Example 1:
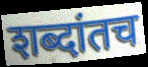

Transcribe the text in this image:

शब्दांतच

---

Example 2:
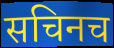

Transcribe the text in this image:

सचिनच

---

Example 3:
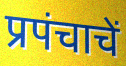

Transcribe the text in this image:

प्रपंचाचें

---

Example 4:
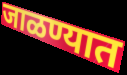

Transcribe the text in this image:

जाळण्यात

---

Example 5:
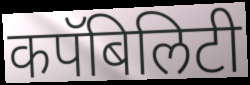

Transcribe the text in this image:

कपॅबिलिटी